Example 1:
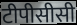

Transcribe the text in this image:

टीपीसीसी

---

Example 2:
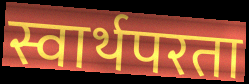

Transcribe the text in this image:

स्वार्थपरता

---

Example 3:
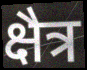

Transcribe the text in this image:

क्षैत्र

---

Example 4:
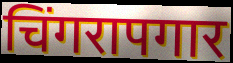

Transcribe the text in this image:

चिंगरापगार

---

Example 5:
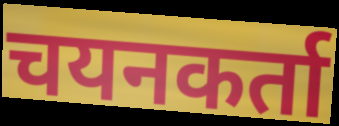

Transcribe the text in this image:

चयनकर्ता